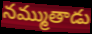
నమ్ముతాడు